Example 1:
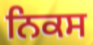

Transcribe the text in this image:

ਨਿਕਸ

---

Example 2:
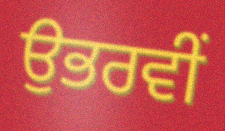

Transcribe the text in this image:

ਉਭਰਵੀਂ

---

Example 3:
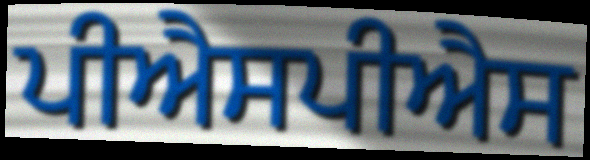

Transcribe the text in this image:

ਪੀਐਸਪੀਐਸ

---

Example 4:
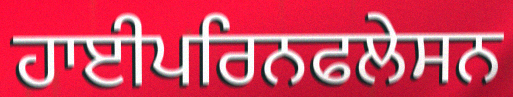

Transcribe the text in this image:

ਹਾਈਪਰਿਨਫਲੇਸਨ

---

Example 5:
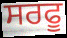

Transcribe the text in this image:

ਸਰਫੂ